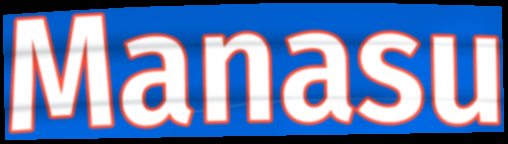
Manasu